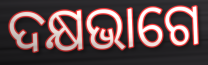
ଦକ୍ଷଭାଗେ